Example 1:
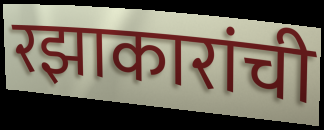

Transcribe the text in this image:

रझाकारांची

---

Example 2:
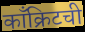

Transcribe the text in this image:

काँक्रिटची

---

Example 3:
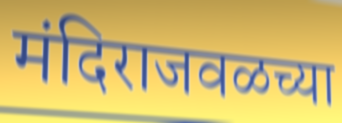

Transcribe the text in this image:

मंदिराजवळच्या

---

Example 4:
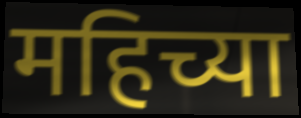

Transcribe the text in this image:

महिच्या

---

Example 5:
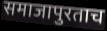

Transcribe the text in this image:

समाजापुरताच